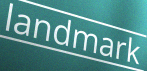
landmark